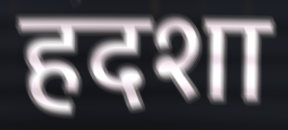
हदशा